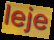
leje